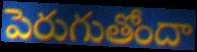
పెరుగుతోందా